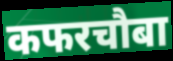
कफरचौबा